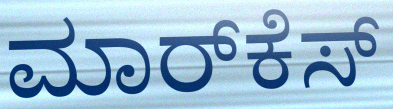
ಮಾರ್‌ಕೆಸ್